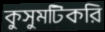
কুসুমটিকরি